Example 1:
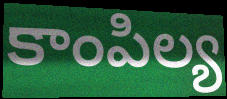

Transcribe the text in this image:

కాంపిల్య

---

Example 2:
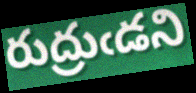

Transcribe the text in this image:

రుద్రుఁడని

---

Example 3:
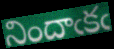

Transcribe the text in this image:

నిందాఁకఁ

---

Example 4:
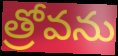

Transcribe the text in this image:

త్రోవను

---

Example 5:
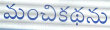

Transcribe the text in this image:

మంచికథను